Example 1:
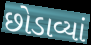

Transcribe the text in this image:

છોડાવ્યાં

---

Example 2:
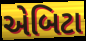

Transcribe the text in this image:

એબિટા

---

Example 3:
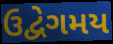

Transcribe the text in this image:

ઉદ્વેગમય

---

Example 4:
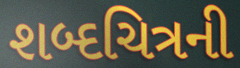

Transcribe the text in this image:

શબ્દચિત્રની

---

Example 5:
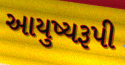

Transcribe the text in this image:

આયુષ્યરૂપી